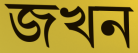
জখন